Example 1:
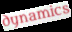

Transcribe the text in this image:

dynamics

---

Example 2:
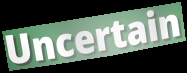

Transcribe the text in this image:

Uncertain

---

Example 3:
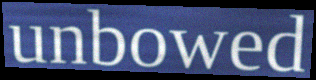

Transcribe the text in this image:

unbowed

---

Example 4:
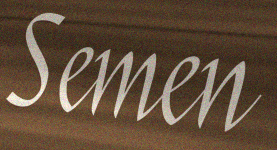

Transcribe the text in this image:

Semen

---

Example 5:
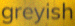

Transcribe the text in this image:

greyish